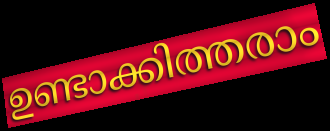
ഉണ്ടാക്കിത്തരാം